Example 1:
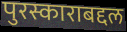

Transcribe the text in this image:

पुरस्काराबद्दल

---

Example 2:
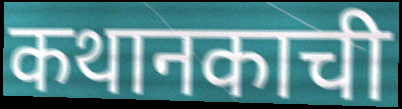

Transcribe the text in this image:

कथानकाची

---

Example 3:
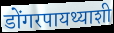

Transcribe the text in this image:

डोंगरपायथ्याशी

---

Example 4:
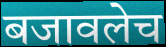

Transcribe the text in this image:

बजावलेच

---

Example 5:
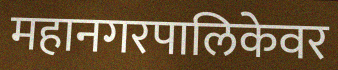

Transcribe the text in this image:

महानगरपालिकेवर